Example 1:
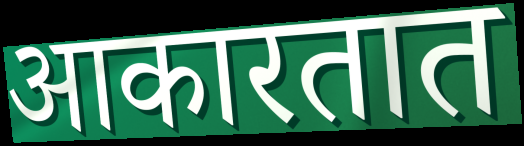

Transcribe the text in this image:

आकारतात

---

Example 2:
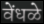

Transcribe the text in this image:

वेंधळे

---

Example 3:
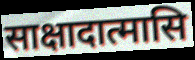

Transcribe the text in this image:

साक्षादात्मासि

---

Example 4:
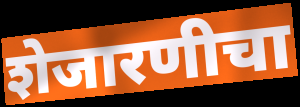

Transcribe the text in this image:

शेजारणीचा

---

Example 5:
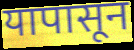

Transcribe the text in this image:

यापासून